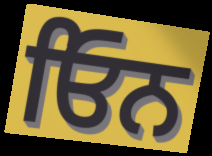
ਓਿਨ